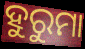
ହୁରୁମା